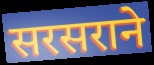
सरसराने